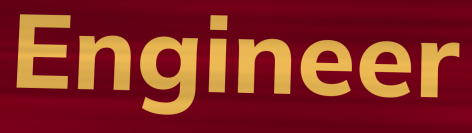
Engineer